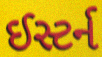
ઈસ્ટર્ન